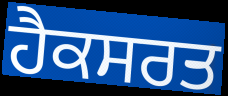
ਹੈਕਸਰਤ